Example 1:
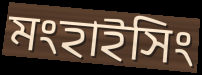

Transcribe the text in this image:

মংহাইসিং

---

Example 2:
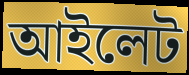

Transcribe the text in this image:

আইলেট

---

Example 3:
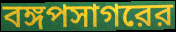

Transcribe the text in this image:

বঙ্গপসাগরের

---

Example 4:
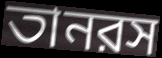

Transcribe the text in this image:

তানরস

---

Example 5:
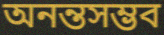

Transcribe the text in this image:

অনন্তসম্ভব